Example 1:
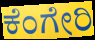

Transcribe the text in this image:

ಕೆಂಗೇರಿ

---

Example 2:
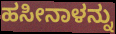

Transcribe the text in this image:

ಹಸೀನಾಳನ್ನು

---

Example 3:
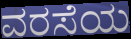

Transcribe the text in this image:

ವರಸೆಯ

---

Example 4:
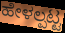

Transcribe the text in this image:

ಹೇಳಲ್ಪಟ್ಟ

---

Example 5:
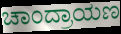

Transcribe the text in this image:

ಚಾಂದ್ರಾಯಣ